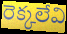
రెక్కలేవి